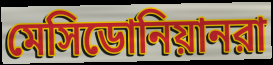
মেসিডোনিয়ানরা